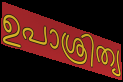
ഉപാശ്രിത്യ